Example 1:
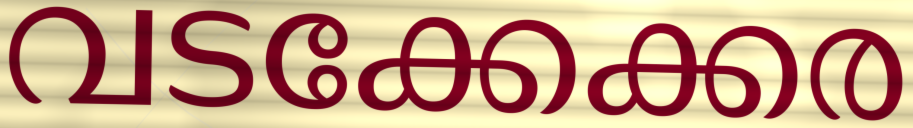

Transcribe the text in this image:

വടക്കേക്കര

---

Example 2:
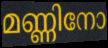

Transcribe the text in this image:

മണ്ണിനോ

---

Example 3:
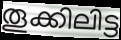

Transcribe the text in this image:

തൂക്കിലിട്ട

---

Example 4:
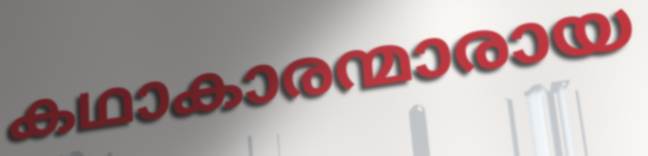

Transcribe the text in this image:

കഥാകാരന്മാരായ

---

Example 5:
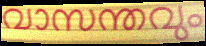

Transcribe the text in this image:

വാസന്തവും